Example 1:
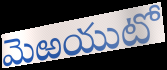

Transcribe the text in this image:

మెఱయుటో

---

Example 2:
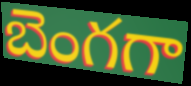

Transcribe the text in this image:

బెంగగా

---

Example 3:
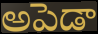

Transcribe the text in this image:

అపెడా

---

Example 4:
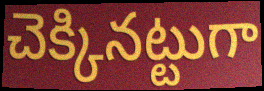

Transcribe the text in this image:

చెక్కినట్టుగా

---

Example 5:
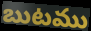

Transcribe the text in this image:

బుటము